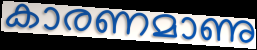
കാരണമാണു